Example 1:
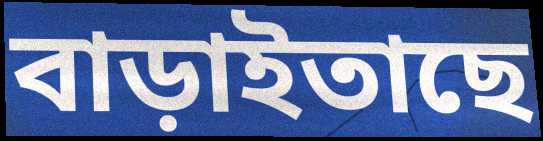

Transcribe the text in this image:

বাড়াইতাছে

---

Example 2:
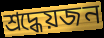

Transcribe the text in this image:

শ্রদ্ধেয়জন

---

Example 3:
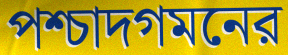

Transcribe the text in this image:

পশ্চাদগমনের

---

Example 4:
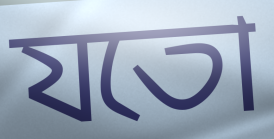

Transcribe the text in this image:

যতো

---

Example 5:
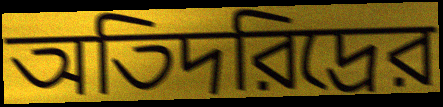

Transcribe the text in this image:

অতিদরিদ্রের